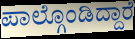
ಪಾಲ್ಗೊಂಡಿದ್ದಾರೆ